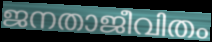
ജനതാജീവിതം